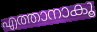
എത്താനാകൂ